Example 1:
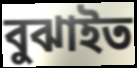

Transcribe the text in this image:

বুঝাইত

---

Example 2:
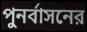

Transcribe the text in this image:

পুনর্বাসনের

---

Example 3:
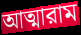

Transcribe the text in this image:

আত্মারাম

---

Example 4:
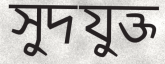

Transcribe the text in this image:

সুদযুক্ত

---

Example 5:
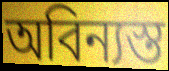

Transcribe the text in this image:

অবিন্যস্ত